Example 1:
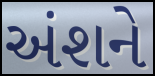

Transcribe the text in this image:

અંશને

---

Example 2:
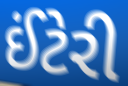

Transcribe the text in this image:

ઈંટેરી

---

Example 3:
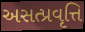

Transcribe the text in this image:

અસત્પ્રવૃત્તિ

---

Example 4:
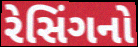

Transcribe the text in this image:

રેસિંગનો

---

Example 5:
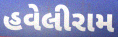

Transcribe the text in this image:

હવેલીરામ